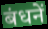
बंधनें